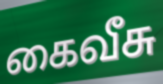
கைவீசு